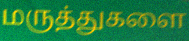
மருத்துகளை